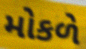
મોકળે